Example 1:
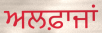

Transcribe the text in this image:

ਅਲਫ਼ਾਜਾਂ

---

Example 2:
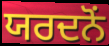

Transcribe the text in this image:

ਯਰਦਨੋਂ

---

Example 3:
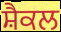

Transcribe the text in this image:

ਸ਼ੈਕਲ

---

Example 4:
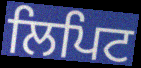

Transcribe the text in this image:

ਲਿਪਿਟ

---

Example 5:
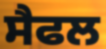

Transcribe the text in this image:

ਸੈਫਲ